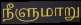
நீளுமாறு